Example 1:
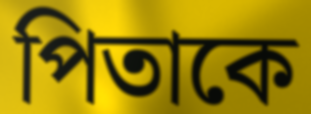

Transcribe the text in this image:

পিতাকে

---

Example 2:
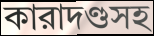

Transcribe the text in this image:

কারাদণ্ডসহ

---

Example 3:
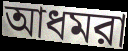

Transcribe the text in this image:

আধমরা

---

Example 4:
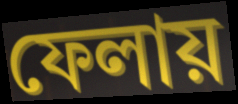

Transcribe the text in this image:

ফেলায়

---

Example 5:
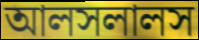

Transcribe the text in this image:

আলসলালস